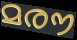
മരൗ